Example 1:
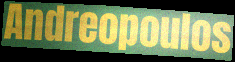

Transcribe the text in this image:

Andreopoulos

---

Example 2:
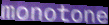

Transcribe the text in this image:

monotone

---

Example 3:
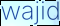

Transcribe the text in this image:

wajid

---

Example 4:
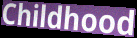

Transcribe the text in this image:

Childhood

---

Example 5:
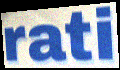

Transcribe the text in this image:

rati